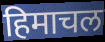
हिमाचल